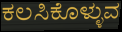
ಕಲಸಿಕೊಳ್ಳುವ